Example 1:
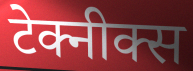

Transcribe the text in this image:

टेक्नीक्स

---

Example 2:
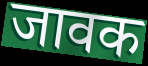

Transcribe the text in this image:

जावक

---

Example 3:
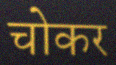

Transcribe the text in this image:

चोकर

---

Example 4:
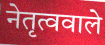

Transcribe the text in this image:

नेतृत्ववाले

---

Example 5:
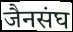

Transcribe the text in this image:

जैनसंघ